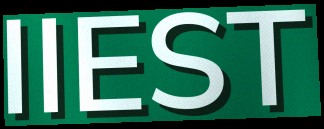
IIEST